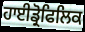
ਹਾਈਡ੍ਰੋਫਿਲਿਕ